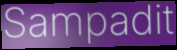
Sampadit